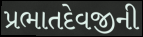
પ્રભાતદેવજીની